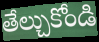
తేల్చుకోండి